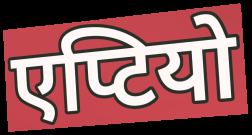
एप्टियो